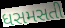
ધસમસતી